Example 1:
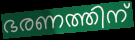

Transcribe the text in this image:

ഭരണത്തിന്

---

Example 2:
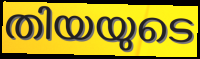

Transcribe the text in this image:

തിയയുടെ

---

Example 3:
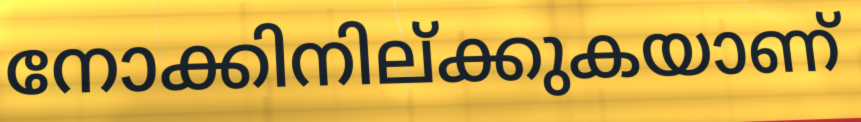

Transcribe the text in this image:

നോക്കിനില്ക്കുകയാണ്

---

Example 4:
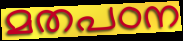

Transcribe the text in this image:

മതപഠന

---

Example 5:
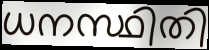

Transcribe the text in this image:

ധനസ്ഥിതി